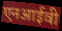
एनआईवी